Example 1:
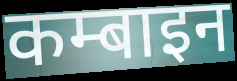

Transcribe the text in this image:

कम्बाइन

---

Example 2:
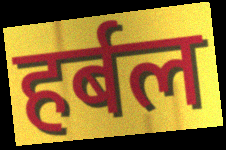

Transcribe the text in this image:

हर्बल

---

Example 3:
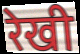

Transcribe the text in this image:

रेखी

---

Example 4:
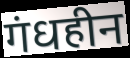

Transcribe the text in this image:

गंधहीन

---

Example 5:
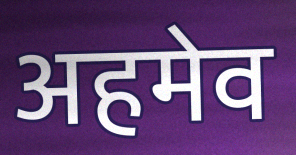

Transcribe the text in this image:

अहमेव